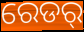
ରେଡର୍